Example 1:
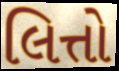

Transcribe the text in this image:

લિત્તો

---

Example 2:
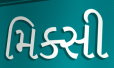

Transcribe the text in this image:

મિક્સી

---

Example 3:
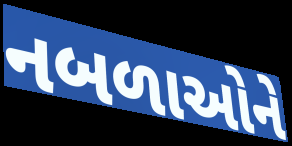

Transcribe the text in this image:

નબળાઓને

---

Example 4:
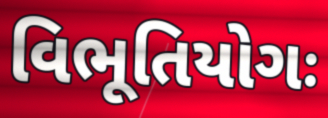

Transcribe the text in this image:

વિભૂતિયોગઃ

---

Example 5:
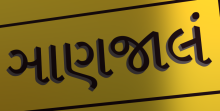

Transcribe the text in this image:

ઞાણજાલં